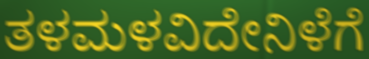
ತಳಮಳವಿದೇನಿಳೆಗೆ